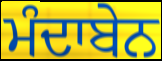
ਮੰਦਾਬੇਨ